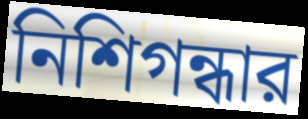
নিশিগন্ধার